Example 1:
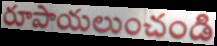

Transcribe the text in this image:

రూపాయలుంచండి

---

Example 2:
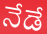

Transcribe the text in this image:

నేడే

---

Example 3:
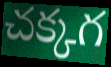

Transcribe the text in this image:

చక్కగ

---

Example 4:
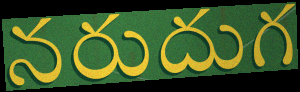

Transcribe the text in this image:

నరుదుగ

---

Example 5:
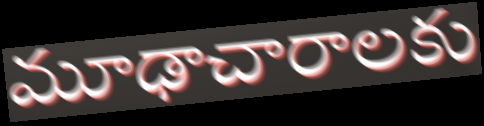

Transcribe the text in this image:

మూఢాచారాలకు